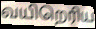
வயிறெரிய